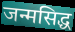
जन्‍मसिद्ध